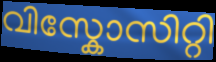
വിസ്കോസിറ്റി